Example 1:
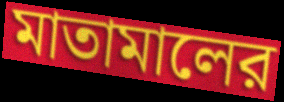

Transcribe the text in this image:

মাতামালের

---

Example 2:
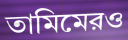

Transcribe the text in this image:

তামিমেরও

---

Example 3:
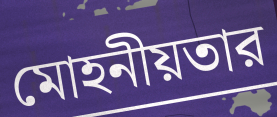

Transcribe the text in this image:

মোহনীয়তার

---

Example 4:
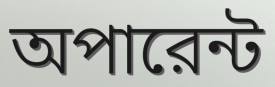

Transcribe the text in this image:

অপারেন্ট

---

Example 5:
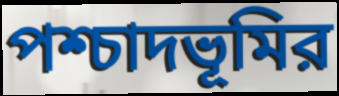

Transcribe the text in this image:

পশ্চাদভূমির